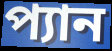
প্যান